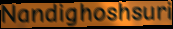
Nandighoshsuri